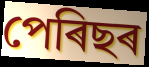
পেৰিছৰ